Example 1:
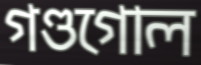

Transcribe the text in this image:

গণ্ডগোল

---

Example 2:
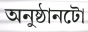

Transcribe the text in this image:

অনুষ্ঠানটো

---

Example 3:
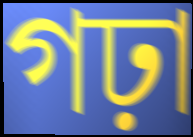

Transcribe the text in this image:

গঢ়া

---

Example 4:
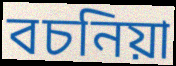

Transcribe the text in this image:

বচনিয়া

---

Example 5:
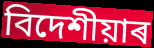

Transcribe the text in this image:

বিদেশীয়াৰ